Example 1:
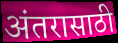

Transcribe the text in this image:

अंतरासाठी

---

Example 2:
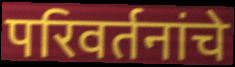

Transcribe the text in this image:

परिवर्तनांचे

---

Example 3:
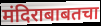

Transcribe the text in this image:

मंदिराबाबतचा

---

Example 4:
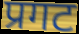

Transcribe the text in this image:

प्रगट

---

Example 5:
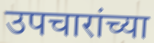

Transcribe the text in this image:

उपचारांच्या